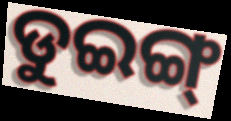
ଡୁଇଙ୍ଗ୍